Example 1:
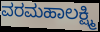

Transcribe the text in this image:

ವರಮಹಾಲಕ್ಷ್ಮಿ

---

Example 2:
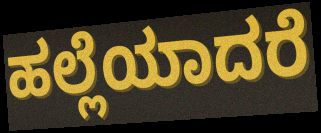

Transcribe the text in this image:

ಹಲ್ಲೆಯಾದರೆ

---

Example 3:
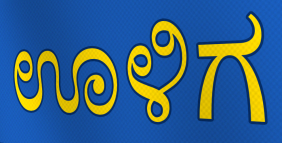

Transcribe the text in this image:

ಊಳಿಗ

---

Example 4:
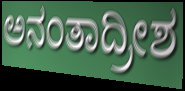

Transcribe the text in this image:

ಅನಂತಾದ್ರೀಶ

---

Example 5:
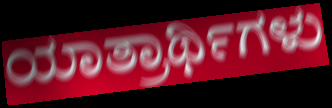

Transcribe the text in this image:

ಯಾತ್ರಾರ್ಥಿಗಳು